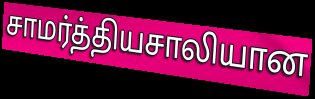
சாமர்த்தியசாலியான